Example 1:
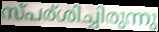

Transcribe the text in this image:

സ്പര്ശിച്ചിരുന്നു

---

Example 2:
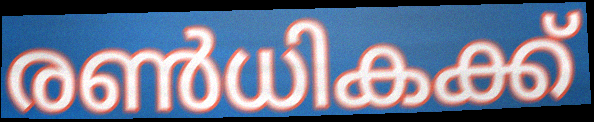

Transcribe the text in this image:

രൺധികക്ക്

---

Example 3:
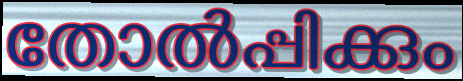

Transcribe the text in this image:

തോൽപ്പിക്കും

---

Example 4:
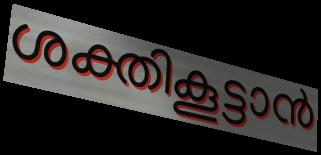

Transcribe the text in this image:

ശക്തികൂട്ടാൻ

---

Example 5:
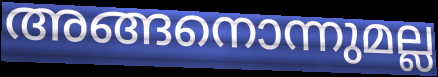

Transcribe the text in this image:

അങ്ങനൊന്നുമല്ല